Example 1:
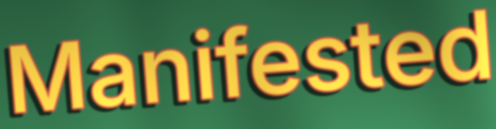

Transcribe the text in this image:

Manifested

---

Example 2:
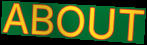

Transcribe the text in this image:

ABOUT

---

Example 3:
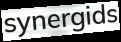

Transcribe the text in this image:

synergids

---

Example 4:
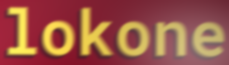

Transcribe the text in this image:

lokone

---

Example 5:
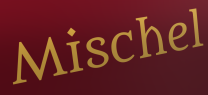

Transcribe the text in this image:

Mischel